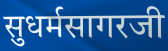
सुधर्मसागरजी